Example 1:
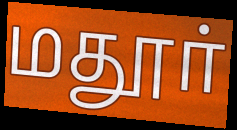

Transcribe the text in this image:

மதூர்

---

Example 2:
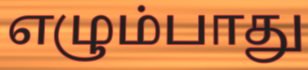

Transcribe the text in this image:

எழும்பாது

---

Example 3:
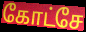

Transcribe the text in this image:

கோட்சே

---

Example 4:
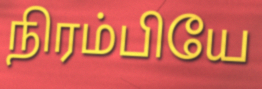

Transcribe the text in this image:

நிரம்பியே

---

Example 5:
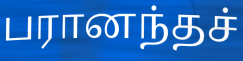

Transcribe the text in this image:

பரானந்தச்